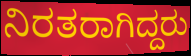
ನಿರತರಾಗಿದ್ದರು